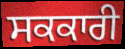
ਸਕਕਾਰੀ